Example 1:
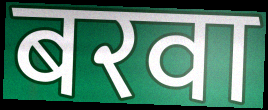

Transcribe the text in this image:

बरवा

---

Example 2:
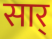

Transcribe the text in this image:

सार्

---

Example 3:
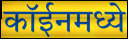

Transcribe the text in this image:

कॉईनमध्ये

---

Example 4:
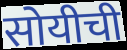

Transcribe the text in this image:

सोयीची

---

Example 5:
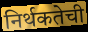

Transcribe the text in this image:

निर्थकतेची